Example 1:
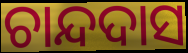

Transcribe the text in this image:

ଚାନ୍ଦଦାସ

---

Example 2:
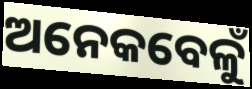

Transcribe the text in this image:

ଅନେକବେଳୁଁ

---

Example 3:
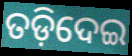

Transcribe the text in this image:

ତଡ଼ିଦେଇ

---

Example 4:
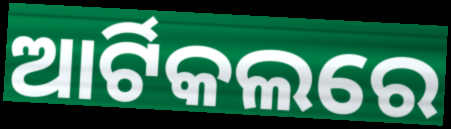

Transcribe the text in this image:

ଆର୍ଟିକଲରେ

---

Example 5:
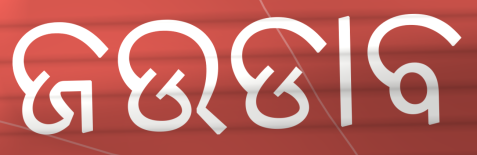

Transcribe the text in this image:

ଜଉଡାବ